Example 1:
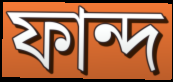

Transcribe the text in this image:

ফান্দ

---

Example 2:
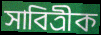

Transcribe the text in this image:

সাবিত্ৰীক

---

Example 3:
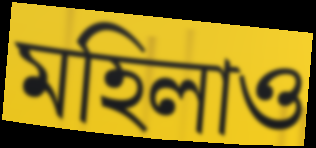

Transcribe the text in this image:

মহিলাও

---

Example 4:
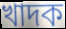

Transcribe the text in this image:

খাদক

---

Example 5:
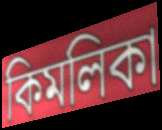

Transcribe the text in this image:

কিমলিকা